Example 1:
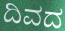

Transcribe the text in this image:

ದಿವದ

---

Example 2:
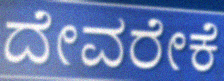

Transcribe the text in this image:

ದೇವರೇಕೆ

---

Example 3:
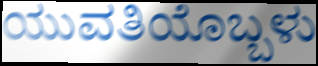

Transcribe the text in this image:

ಯುವತಿಯೊಬ್ಬಳು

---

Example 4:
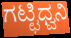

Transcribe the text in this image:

ಗಟ್ಟಿಧ್ವನಿ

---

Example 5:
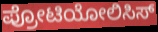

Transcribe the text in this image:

ಪ್ರೋಟಿಯೋಲಿಸಿಸ್